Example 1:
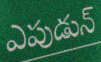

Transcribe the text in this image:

ఎపుడున్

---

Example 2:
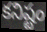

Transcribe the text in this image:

కనిష్టం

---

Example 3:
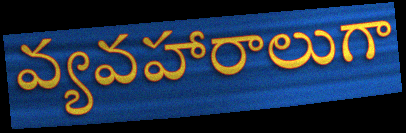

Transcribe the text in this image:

వ్యవహారాలుగా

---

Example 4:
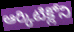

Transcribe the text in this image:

ఆర్కిటిక్లోని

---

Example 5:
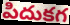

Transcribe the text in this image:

పిదుకగ